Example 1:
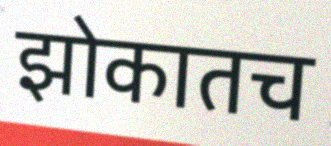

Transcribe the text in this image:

झोकातच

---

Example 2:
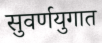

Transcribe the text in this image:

सुवर्णयुगात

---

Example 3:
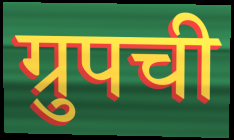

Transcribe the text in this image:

ग्रुपची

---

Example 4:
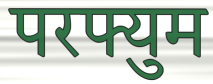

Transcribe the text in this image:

परफ्युम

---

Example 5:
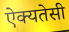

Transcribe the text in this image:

ऐक्यतेसी